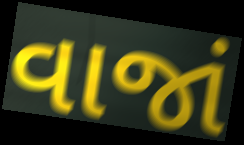
વાજાં